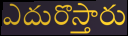
ఎదురొస్తారు